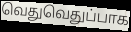
வெதுவெதுப்பாக